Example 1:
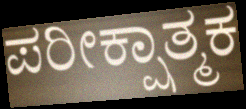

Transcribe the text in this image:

ಪರೀಕ್ಷಾತ್ಮಕ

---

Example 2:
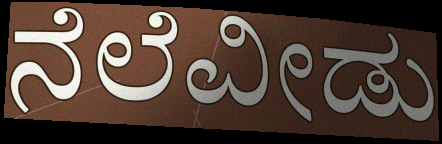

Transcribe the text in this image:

ನೆಲೆವೀಡು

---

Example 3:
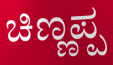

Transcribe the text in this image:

ಚಿಣ್ಣಪ್ಪ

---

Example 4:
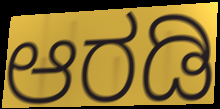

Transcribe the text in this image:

ಆರಡಿ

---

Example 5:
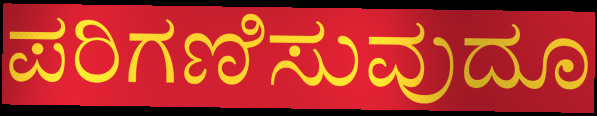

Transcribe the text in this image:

ಪರಿಗಣಿಸುವುದೂ